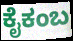
ಕೈಕಂಬ